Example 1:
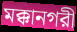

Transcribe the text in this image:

মক্কানগরী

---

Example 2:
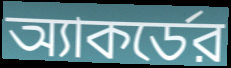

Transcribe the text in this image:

অ্যাকর্ডের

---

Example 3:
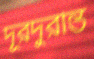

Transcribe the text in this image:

দূরদুরান্ত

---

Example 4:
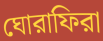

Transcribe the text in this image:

ঘোরাফিরা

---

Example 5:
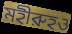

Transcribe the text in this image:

মহীরুহও